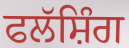
ਫਲੱਸ਼ਿੰਗ